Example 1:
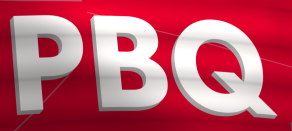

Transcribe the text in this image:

PBQ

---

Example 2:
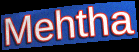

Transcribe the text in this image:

Mehtha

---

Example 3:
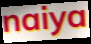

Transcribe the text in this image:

naiya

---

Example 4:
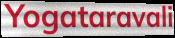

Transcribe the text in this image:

Yogataravali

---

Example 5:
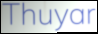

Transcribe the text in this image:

Thuyar